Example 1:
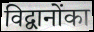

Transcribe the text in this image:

विद्वानोंका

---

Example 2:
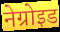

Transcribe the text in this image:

नेग्रोइड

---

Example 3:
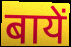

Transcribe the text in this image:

बायें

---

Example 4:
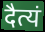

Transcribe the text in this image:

दैत्यं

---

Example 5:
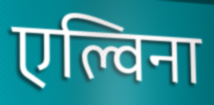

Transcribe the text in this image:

एल्विना